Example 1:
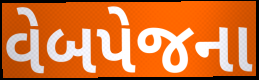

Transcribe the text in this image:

વેબપેજના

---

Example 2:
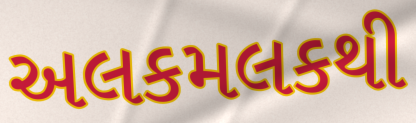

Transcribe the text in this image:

અલકમલકથી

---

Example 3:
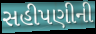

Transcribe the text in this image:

સહીપણીની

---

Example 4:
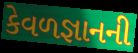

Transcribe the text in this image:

કેવળજ્ઞાનની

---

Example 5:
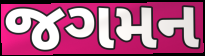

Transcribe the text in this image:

જગમન